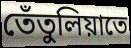
তেঁতুলিয়াতে